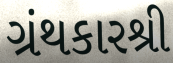
ગ્રંથકારશ્રી